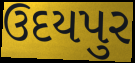
ઉદયપુર